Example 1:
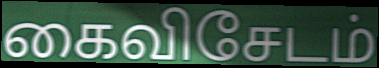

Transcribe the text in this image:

கைவிசேடம்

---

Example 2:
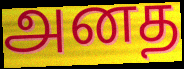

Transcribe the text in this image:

அனத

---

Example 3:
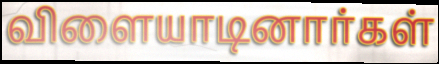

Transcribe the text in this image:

விளையாடினார்கள்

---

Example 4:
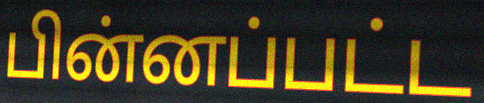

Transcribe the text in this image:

பின்னப்பட்ட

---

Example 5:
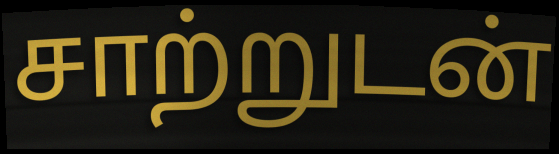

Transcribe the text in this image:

சாற்றுடன்